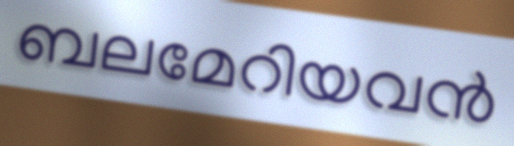
ബലമേറിയവൻ